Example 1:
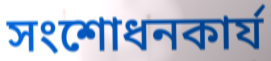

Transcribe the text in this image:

সংশোধনকার্য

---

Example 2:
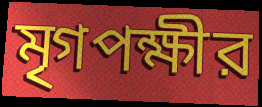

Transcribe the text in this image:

মৃগপক্ষীর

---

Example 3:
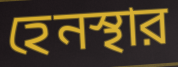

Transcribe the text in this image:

হেনস্থার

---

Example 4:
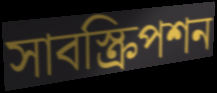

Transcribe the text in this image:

সাবস্ক্রিপশন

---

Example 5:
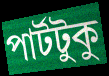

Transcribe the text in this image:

পার্টটুকু